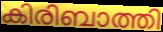
കിരിബാത്തി